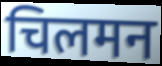
चिलमन